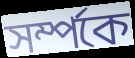
সৰ্ম্পকে